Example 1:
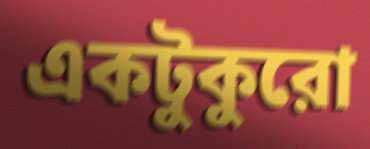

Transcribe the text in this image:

একটুকুরো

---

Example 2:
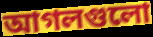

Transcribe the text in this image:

আগলগুলো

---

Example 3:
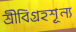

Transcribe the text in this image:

শ্রীবিগ্রহশূন্য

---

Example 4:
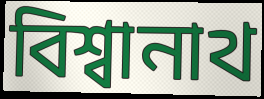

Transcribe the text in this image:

বিশ্বানাথ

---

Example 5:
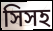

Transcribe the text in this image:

সিসহ